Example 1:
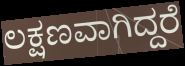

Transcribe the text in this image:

ಲಕ್ಷಣವಾಗಿದ್ದರೆ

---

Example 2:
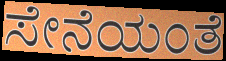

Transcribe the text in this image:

ಸೇನೆಯಂತೆ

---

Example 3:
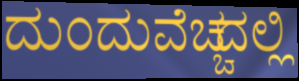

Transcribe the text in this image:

ದುಂದುವೆಚ್ಚದಲ್ಲಿ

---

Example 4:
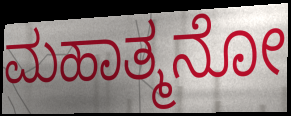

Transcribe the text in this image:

ಮಹಾತ್ಮನೋ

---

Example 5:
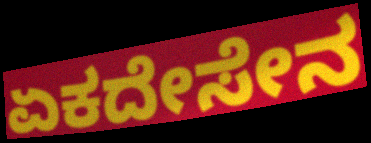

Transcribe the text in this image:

ಏಕದೇಸೇನ